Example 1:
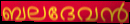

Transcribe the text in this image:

ബലദേവൻ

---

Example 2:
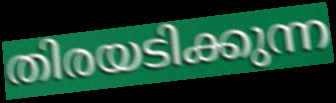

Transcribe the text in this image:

തിരയടിക്കുന്ന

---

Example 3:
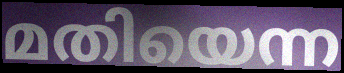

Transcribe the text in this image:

മതിയെന്ന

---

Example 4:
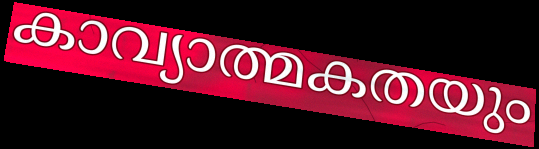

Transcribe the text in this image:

കാവ്യാത്മകതയും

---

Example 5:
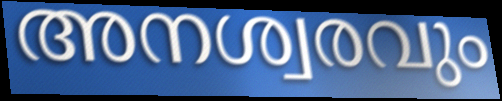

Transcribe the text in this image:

അനശ്വരവും